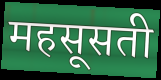
महसूसती